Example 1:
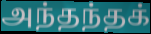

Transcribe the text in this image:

அந்தந்தக்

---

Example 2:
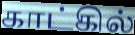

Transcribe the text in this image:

காட்கில்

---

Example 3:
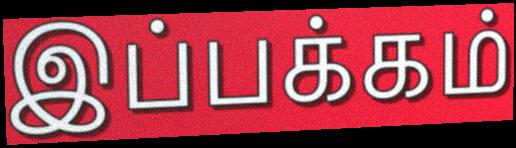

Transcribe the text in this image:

இப்பக்கம்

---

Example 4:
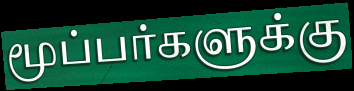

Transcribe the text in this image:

மூப்பர்களுக்கு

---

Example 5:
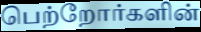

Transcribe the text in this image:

பெற்றோர்களின்